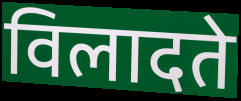
विलादते